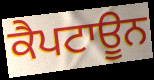
ਕੈਪਟਾਊਨ